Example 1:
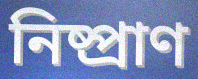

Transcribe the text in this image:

নিষ্প্রাণ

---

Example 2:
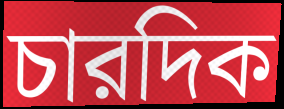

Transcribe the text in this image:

চারদিক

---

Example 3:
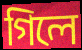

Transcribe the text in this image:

গিলে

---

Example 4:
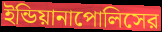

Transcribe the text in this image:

ইন্ডিয়ানাপোলিসের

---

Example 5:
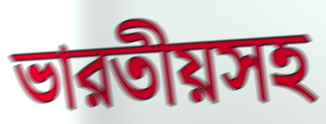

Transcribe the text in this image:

ভারতীয়সহ